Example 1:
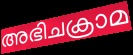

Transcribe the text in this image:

അഭിചക്രാമ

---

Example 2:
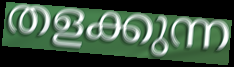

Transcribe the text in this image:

തളക്കുന്ന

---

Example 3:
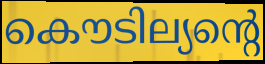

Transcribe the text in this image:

കൌടില്യന്റെ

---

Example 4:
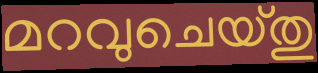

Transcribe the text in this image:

മറവുചെയ്തു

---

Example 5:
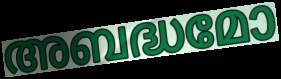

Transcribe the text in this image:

അബദ്ധമോ